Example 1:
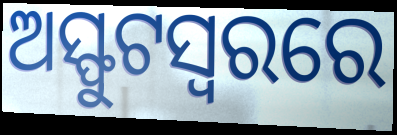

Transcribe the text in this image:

ଅସ୍ଫୁଟସ୍ୱରରେ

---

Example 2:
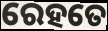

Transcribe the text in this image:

ରେହତେ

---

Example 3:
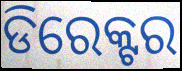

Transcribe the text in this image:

ଡିରେକ୍ଟର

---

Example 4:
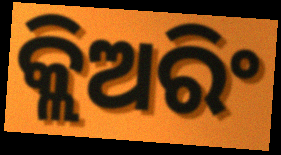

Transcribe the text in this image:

କ୍ଲିଅରିଂ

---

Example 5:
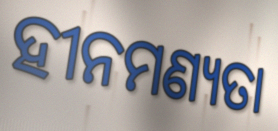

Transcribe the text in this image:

ହୀନମଣ୍ୟତା